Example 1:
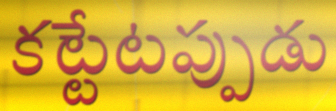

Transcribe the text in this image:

కట్టేటప్పుడు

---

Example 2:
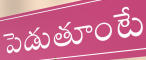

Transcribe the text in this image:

పెడుతూంటే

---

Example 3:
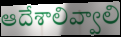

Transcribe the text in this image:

ఆదేశాలివ్వాలి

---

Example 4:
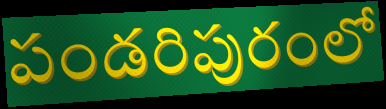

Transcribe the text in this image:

పండరిపురంలో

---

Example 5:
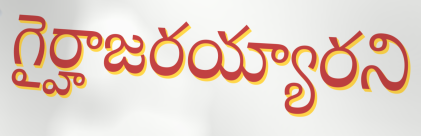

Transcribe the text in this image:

గైర్హాజరయ్యారని